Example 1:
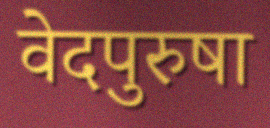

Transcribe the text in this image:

वेदपुरुषा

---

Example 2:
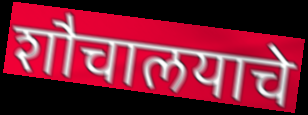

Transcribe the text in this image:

शौचालयाचे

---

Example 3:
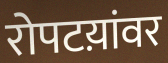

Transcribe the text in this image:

रोपटय़ांवर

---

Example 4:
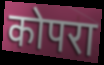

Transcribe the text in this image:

कोपरा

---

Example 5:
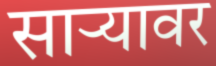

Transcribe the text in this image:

साऱ्यावर